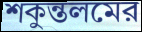
শকুন্তলমের